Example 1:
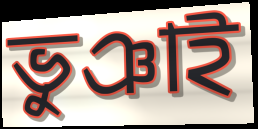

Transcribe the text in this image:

ভুঞাই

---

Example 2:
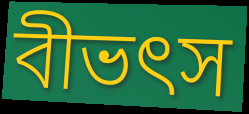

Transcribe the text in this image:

বীভৎস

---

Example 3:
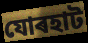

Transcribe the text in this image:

যোৰহাট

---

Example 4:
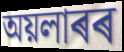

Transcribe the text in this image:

অয়লাৰৰ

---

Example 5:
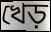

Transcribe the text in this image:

খেড়